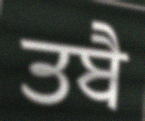
ਤਬੈ